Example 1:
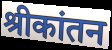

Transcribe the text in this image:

श्रीकांतन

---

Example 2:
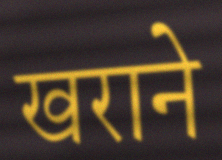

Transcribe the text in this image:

खराने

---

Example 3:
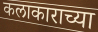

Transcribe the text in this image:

कलाकाराच्या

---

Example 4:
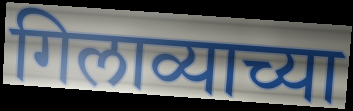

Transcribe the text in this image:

गिलाव्याच्या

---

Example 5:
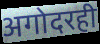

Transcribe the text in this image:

अगोदरही